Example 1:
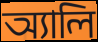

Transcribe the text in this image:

অ্যালি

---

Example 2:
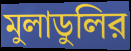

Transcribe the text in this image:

মুলাডুলির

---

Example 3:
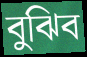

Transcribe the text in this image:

বুঝিব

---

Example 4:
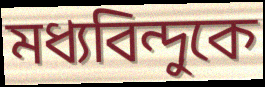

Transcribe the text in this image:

মধ্যবিন্দুকে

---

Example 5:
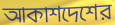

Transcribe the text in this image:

আকাশদেশের